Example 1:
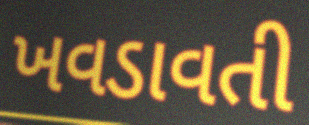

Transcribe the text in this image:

ખવડાવતી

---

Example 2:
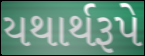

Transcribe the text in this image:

યથાર્થરૂપે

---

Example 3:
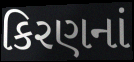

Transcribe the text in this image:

કિરણનાં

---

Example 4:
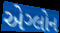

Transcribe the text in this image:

એગ્લોન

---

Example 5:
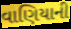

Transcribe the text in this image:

વાણિયાની